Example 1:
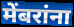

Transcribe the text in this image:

मेंबरांना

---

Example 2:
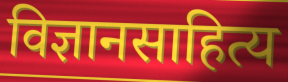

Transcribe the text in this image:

विज्ञानसाहित्य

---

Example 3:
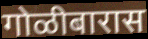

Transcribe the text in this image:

गोळीबारास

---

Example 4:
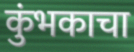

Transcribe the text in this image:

कुंभकाचा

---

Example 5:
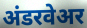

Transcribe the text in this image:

अंडरवेअर